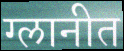
ग्लानीत